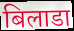
बिलाडा